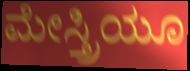
ಮೇಸ್ತ್ರಿಯೂ